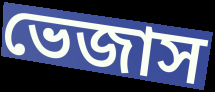
ভেজাস